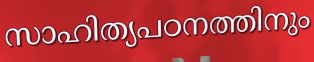
സാഹിത്യപഠനത്തിനും